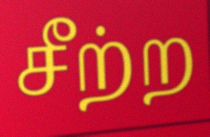
சீற்ற